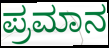
ಪ್ರಮಾನ